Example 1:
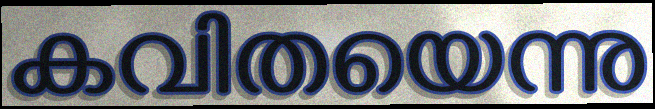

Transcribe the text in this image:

കവിതയെന്നു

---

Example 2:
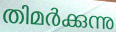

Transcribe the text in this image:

തിമർക്കുന്നു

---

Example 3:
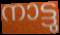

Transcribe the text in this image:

നാട്ടു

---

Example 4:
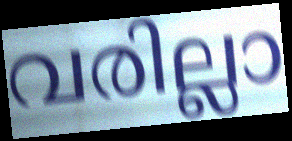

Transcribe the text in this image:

വരില്ലാ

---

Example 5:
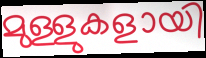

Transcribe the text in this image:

മുള്ളുകളായി